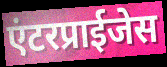
एंटरप्राईजेस